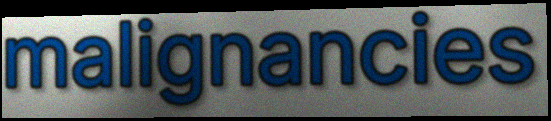
malignancies